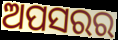
ଅପସରର